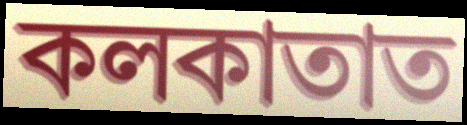
কলকাতাত